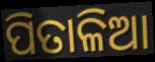
ପିତାଳିଆ